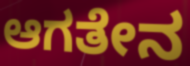
ಆಗತೇನ